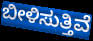
ಬೀಳಿಸುತ್ತಿವೆ